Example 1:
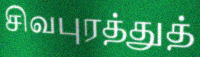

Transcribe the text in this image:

சிவபுரத்துத்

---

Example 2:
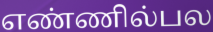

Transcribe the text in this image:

எண்ணில்பல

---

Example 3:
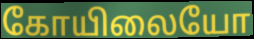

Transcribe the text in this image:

கோயிலையோ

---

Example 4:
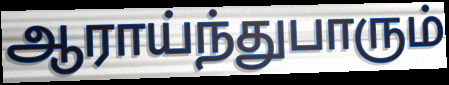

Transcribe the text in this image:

ஆராய்ந்துபாரும்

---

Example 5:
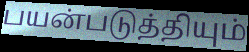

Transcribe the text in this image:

பயன்படுத்தியும்